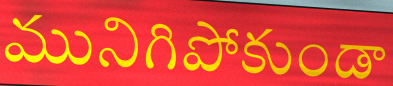
మునిగిపోకుండా